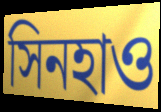
সিনহাও